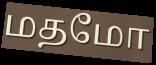
மதமோ